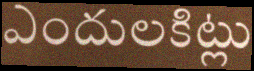
ఎందులకిట్లు